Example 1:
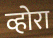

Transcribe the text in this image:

व्होरा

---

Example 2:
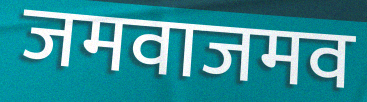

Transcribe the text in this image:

जमवाजमव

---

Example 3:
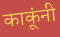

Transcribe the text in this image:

काकूंनी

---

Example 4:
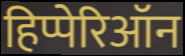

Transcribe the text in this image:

हिप्पेरिऑन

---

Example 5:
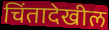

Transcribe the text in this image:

चिंतादेखील